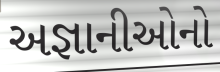
અજ્ઞાનીઓનો